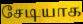
சேடியாக